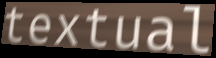
textual